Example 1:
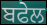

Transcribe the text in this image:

ਬਫੇਲ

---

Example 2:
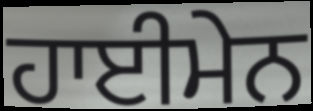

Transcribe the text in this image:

ਹਾਈਮੇਨ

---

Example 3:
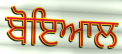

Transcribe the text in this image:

ਬੋਇਆਲ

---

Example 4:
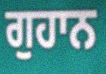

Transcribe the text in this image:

ਗੁਹਾਨ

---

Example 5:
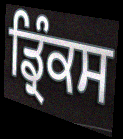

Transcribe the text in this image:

ਡ੍ਰਿੰਕਸ